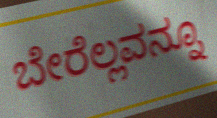
ಬೇರೆಲ್ಲವನ್ನೂ